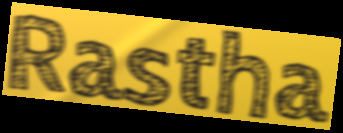
Rastha